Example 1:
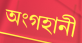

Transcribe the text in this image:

অংগহানী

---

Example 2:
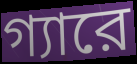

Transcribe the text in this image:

গ্যারে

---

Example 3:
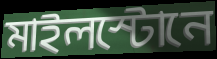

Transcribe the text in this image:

মাইলস্টোনে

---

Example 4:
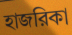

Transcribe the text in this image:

হাজরিকা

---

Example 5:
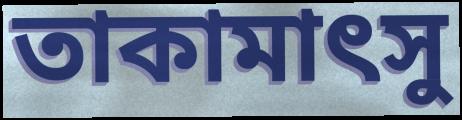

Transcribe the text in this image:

তাকামাৎসু